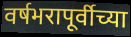
वर्षभरापूर्वीच्या